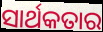
ସାର୍ଥକତାର